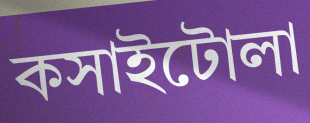
কসাইটোলা